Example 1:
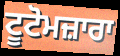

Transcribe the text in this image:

ਟੂਟੋਮਜ਼ਾਰਾ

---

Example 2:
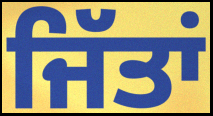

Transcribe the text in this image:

ਜਿੱਤਾਂ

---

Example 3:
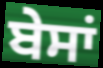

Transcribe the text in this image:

ਬੇਸਾਂ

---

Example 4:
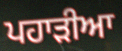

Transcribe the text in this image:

ਪਹਾੜੀਆ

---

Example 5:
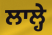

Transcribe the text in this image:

ਲਾਲ੍ਹੇ